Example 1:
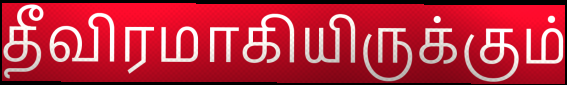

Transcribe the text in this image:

தீவிரமாகியிருக்கும்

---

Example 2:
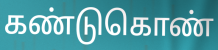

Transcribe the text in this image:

கண்டுகொண்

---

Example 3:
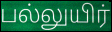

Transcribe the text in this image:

பல்லுயிர்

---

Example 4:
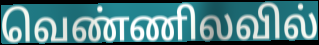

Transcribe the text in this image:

வெண்ணிலவில்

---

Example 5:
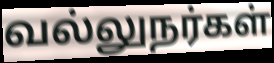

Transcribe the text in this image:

வல்லுநர்கள்